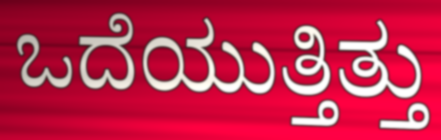
ಒದೆಯುತ್ತಿತ್ತು